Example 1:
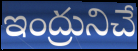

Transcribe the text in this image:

ఇంద్రునిచే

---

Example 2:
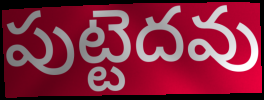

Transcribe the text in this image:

పుట్టెదవు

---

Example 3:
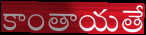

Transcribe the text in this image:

కాంతాయతే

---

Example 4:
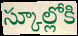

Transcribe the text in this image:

స్కూల్లోకి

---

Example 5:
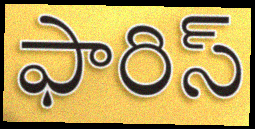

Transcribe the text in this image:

ఫారిస్